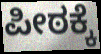
ಪೀಠಕ್ಕೆ